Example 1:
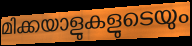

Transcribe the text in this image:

മിക്കയാളുകളുടെയും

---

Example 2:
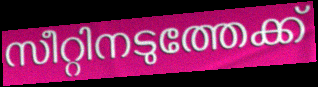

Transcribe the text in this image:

സീറ്റിനടുത്തേക്ക്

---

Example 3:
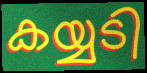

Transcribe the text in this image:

കയ്യടി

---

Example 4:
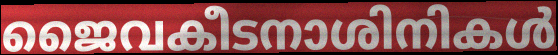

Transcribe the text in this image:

ജൈവകീടനാശിനികൾ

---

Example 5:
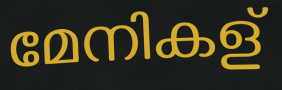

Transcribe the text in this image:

മേനികള്